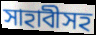
সাহাবীসহ